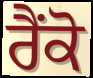
ਰੈਂਕੋ